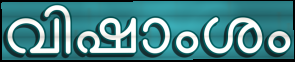
വിഷാംശം